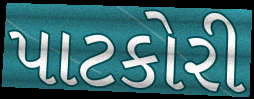
પાટકોરી